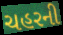
ચહરની